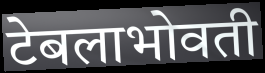
टेबलाभोवती